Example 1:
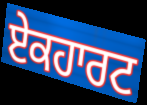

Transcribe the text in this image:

ਏਕਹਾਰਟ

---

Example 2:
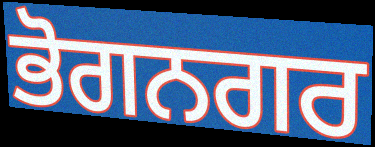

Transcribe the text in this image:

ਭੋਗਨਗਰ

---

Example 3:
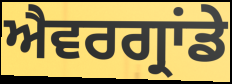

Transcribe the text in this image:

ਐਵਰਗ੍ਰਾਂਡੇ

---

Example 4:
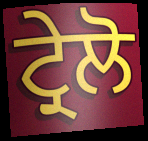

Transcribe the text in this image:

ਟ੍ਰੇਲੋ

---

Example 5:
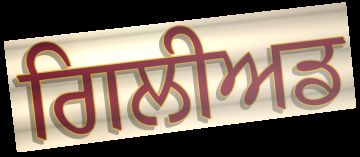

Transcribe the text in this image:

ਗਿਲੀਅਡ